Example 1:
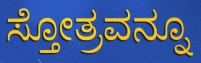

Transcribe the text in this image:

ಸ್ತೋತ್ರವನ್ನೂ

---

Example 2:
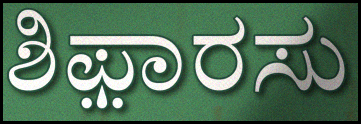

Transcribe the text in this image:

ಶಿಫ಼ಾರಸು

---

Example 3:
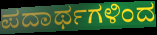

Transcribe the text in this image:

ಪದಾರ್ಥಗಳಿಂದ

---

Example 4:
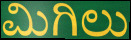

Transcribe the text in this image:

ಮಿಗಿಲು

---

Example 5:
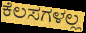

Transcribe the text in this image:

ಕೆಲಸಗಳಲ್ಲ